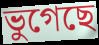
ভুগেছে